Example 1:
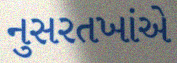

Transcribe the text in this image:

નુસરતખાંએ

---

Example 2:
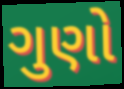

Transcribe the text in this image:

ગુણો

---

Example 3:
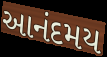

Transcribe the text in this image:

આનંદમય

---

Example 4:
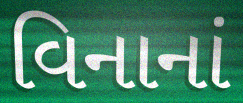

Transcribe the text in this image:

વિનાનાં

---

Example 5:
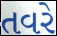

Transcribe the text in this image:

તવરે